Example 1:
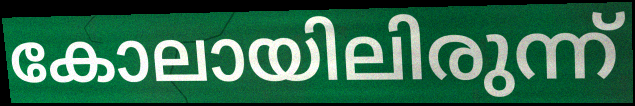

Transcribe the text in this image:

കോലായിലിരുന്ന്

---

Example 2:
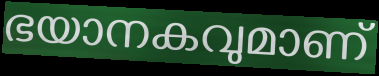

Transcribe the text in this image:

ഭയാനകവുമാണ്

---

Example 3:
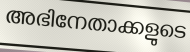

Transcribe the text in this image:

അഭിനേതാക്കളുടെ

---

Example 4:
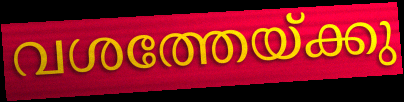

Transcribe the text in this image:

വശത്തേയ്ക്കു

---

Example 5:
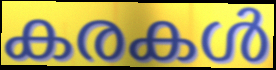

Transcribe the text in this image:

കരകൾ